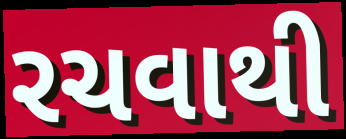
રચવાથી